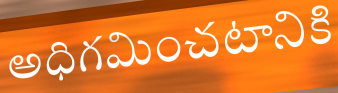
అధిగమించటానికి